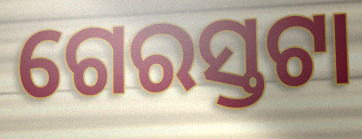
ଗେରସ୍ତଟା